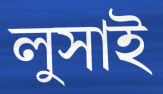
লুসাই